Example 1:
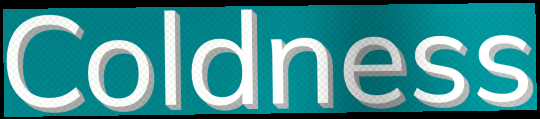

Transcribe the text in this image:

Coldness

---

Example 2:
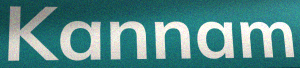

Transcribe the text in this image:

Kannam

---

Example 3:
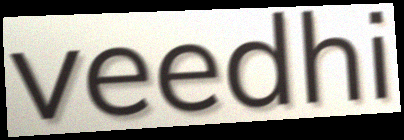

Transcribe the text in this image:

veedhi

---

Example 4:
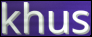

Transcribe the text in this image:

khus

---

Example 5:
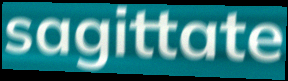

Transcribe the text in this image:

sagittate